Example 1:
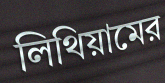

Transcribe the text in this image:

লিথিয়ামের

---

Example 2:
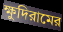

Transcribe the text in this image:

ক্ষুদিরামের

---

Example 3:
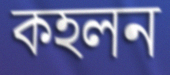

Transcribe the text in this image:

কহলন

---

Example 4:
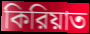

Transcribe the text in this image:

কিরিয়াত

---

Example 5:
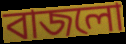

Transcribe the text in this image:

বাজলো